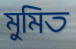
মুমিত